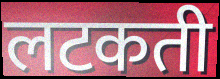
लटकती